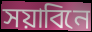
সয়াবিনে